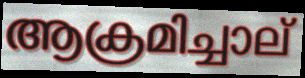
ആക്രമിച്ചാല്